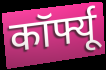
कॉर्फ्यू